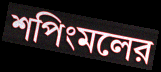
শপিংমলের